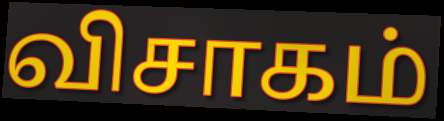
விசாகம்